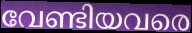
വേണ്ടിയവരെ